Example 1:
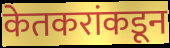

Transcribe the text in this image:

केतकरांकडून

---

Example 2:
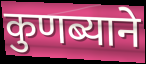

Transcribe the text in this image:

कुणब्याने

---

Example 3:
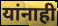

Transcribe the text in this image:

यांनाही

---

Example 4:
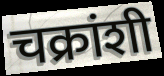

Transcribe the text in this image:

चक्रांशी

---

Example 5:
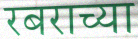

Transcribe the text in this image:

रबराच्या